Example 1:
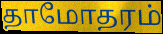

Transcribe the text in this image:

தாமோதரம்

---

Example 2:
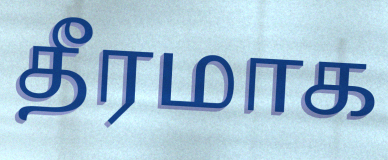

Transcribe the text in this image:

தீரமாக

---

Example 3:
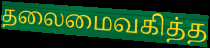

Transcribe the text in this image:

தலைமைவகித்த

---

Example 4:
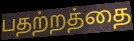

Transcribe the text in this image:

பதற்றத்தை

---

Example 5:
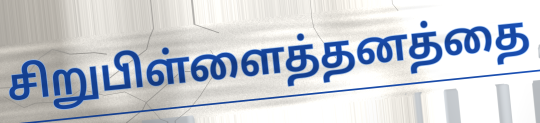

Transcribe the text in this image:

சிறுபிள்ளைத்தனத்தை